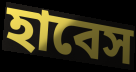
হাবেস